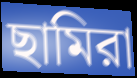
ছামিরা